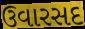
ઉવારસદ